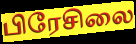
பிரேசிலை